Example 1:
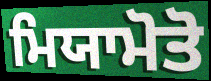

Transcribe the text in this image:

ਮਿਯਾਮੋਤੋ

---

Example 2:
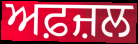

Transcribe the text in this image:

ਅਫ਼ਜ਼ਲ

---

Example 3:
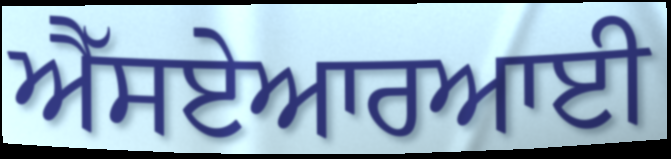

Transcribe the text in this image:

ਐੱਸਏਆਰਆਈ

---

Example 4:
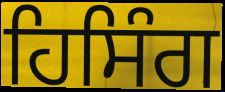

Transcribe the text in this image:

ਹਿਸਿੰਗ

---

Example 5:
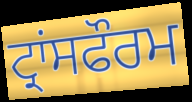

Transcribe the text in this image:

ਟ੍ਰਾਂਸਫੌਰਮ